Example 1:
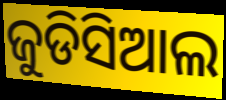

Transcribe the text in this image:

ଜୁଡିସିଆଲ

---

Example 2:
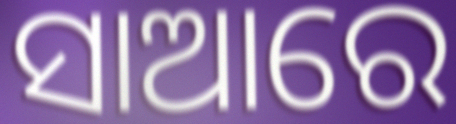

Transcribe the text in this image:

ସାଆରେ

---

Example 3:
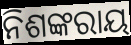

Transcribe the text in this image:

ନିଶଙ୍କରାୟ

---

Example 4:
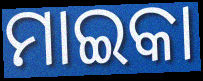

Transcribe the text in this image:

ମାଇକା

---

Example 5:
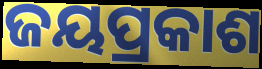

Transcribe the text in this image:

ଜୟପ୍ରକାଶ